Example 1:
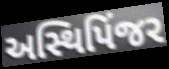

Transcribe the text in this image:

અસ્થિપિંજર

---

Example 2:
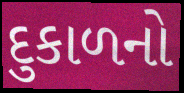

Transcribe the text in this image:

દુકાળનો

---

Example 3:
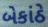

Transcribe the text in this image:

બેકાંઠે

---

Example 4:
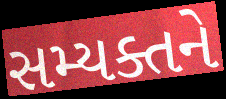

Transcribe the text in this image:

સમ્યક્તને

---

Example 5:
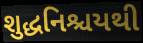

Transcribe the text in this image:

શુદ્ધનિશ્ચયથી